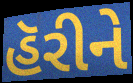
હૅરીને